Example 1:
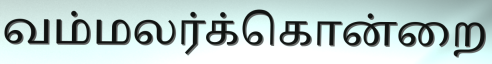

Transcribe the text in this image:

வம்மலர்க்கொன்றை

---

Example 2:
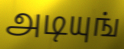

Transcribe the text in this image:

அடியுங்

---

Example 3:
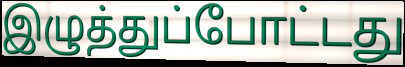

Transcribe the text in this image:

இழுத்துப்போட்டது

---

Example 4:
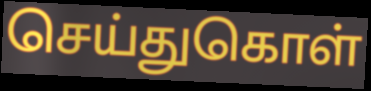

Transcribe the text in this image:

செய்துகொள்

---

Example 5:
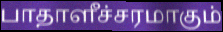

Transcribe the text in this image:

பாதாளீச்சரமாகும்